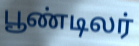
பூண்டிலர்